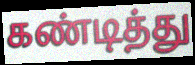
கண்டித்து